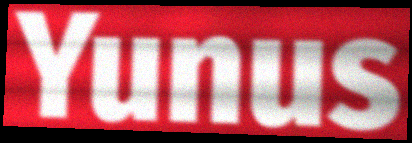
Yunus